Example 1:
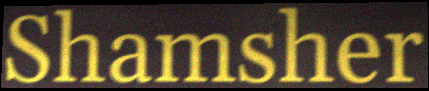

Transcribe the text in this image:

Shamsher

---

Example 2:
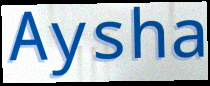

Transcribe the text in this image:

Aysha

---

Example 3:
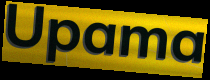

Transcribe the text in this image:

Upama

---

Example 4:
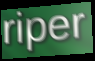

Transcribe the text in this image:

riper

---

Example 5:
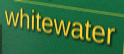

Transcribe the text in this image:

whitewater